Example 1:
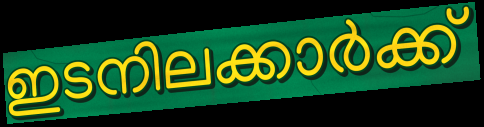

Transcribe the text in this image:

ഇടനിലക്കാർക്ക്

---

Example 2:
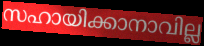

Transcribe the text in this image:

സഹായിക്കാനാവില്ല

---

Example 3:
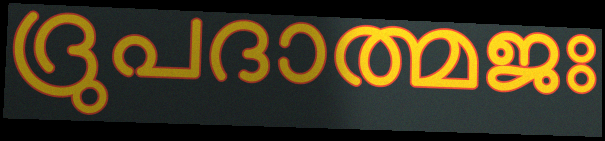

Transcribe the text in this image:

ദ്രുപദാത്മജഃ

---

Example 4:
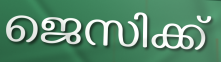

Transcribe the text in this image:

ജെസിക്ക്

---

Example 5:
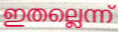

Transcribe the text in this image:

ഇതല്ലെന്ന്